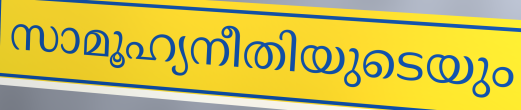
സാമൂഹ്യനീതിയുടെയും